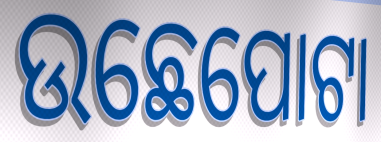
ଉଛେପୋଟା